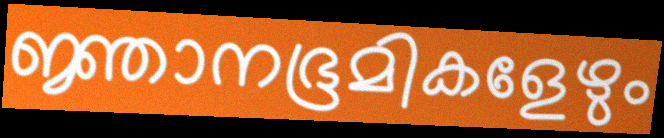
ജ്ഞാനഭൂമികളേഴും